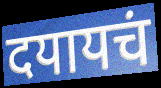
दयायचं